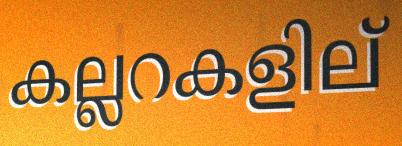
കല്ലറകളില്